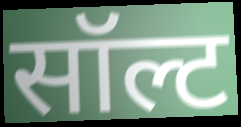
सॉल्ट